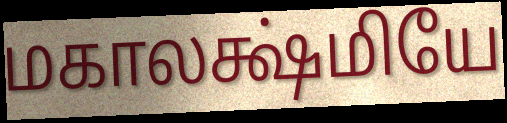
மகாலக்ஷ்மியே